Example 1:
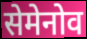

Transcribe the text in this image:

सेमेनोव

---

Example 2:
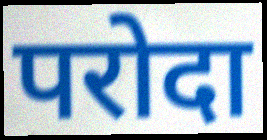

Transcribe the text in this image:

परोदा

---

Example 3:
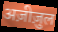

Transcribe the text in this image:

अज़ीज़ुल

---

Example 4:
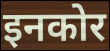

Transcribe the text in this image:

इनकोर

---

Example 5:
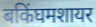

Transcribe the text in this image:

बकिंघमशायर